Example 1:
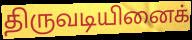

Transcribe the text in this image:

திருவடியினைக்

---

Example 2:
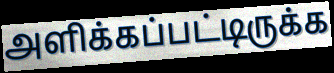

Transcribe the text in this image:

அளிக்கப்பட்டிருக்க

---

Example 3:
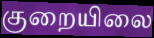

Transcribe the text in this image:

குறையிலை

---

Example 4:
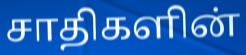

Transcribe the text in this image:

சாதிகளின்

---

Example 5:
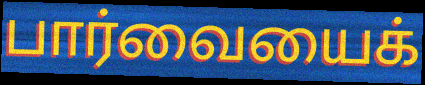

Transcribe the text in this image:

பார்வையைக்